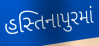
હસ્તિનાપુરમાં